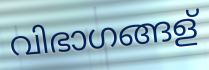
വിഭാഗങ്ങള്